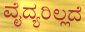
ವೈದ್ಯರಿಲ್ಲದೆ